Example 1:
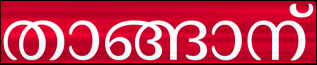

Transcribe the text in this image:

താങ്ങാന്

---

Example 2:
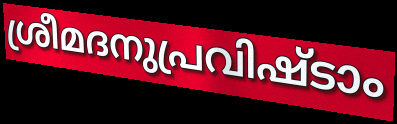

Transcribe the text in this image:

ശ്രീമദനുപ്രവിഷ്ടാം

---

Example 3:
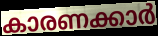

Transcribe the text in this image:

കാരണക്കാർ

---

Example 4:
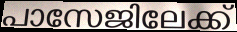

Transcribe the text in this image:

പാസേജിലേക്ക്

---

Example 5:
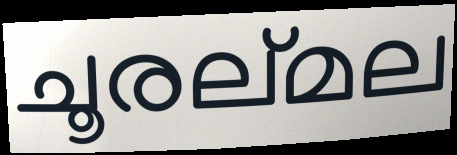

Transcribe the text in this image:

ചൂരല്മല